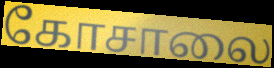
கோசாலை